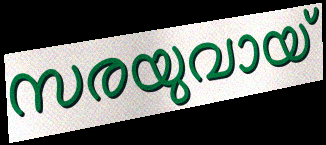
സരയുവായ്